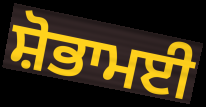
ਸ਼ੋਭਾਮਈ